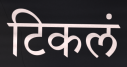
टिकलं